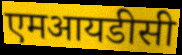
एमआयडीसी